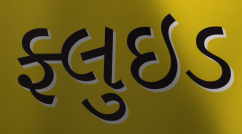
ફ્લુઇડ